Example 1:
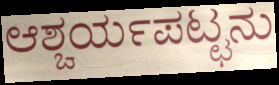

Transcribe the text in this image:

ಆಶ್ಚರ್ಯಪಟ್ಟನು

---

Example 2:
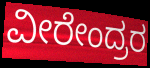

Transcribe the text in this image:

ವೀರೇಂದ್ರರ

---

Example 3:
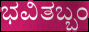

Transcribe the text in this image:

ಭವಿತಬ್ಬಂ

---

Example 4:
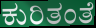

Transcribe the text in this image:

ಕುರಿತಂತೆ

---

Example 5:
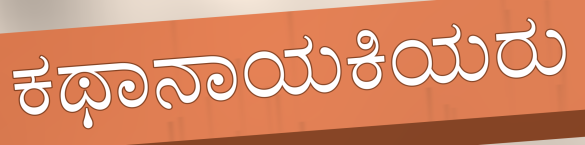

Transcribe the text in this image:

ಕಥಾನಾಯಕಿಯರು